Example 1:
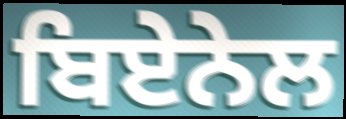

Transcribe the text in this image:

ਬਿਏਨੇਲ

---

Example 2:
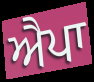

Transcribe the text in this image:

ਐਪਾ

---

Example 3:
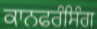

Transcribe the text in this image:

ਕਾਨਫਰੰਸਿੰਗ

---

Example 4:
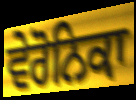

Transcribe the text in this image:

ਵੇਰੋਨਿਕਾ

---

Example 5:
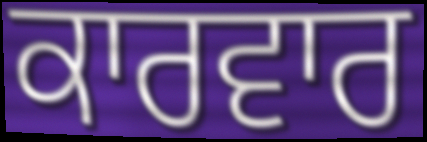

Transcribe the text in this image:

ਕਾਰਵਾਰ